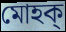
মোহক্